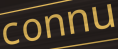
connu